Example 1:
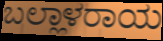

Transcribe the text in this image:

ಬಲ್ಲಾಳರಾಯ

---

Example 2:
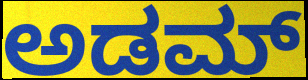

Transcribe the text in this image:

ಅಡಮ್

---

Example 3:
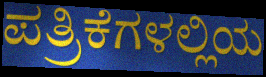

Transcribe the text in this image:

ಪತ್ರಿಕೆಗಳಲ್ಲಿಯ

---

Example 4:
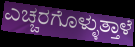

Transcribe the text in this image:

ಎಚ್ಚರಗೊಳ್ಳುತ್ತಾಳೆ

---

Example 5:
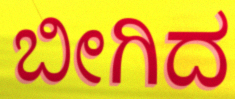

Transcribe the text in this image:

ಬೀಗಿದ